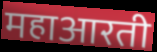
महाआरती